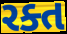
રક્ત